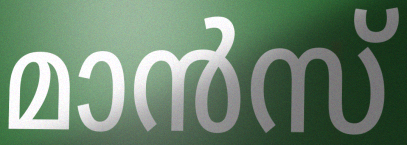
മാൻസ്